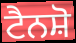
ਟੈਨਸ਼ੋ